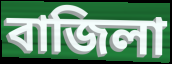
বাজিলা